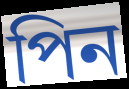
পিন